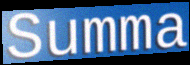
Summa